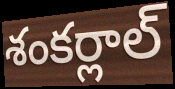
శంకర్లాల్